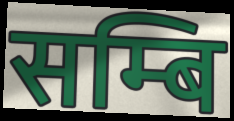
सम्बि